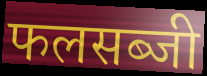
फलसब्जी